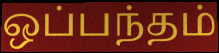
ஒப்பந்தம்